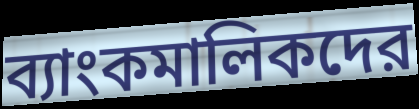
ব্যাংকমালিকদের